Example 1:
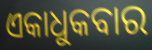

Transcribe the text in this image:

ଏକାଧୁକବାର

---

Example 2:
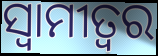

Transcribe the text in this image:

ସ୍ଵାମୀତ୍ୱର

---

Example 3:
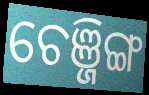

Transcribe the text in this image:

ଚେଞ୍ଜିଙ୍ଗ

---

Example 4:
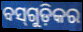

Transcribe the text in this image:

ବସ୍‌ଗୁଡ଼ିକର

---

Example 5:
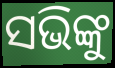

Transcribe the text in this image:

ସଭିଙ୍କୁ